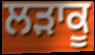
ਲੜਾਕੂ